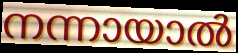
നന്നായാൽ